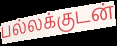
பல்லக்குடன்